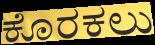
ಕೊರಕಲು